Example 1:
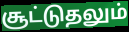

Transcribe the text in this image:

சூட்டுதலும்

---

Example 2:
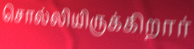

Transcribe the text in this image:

சொல்லியிருக்கிறார்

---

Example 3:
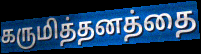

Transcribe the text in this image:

கருமித்தனத்தை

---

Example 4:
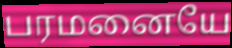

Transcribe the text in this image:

பரமனையே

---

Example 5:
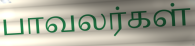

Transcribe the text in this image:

பாவலர்கள்